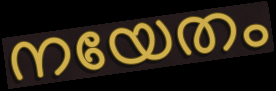
നയേതം